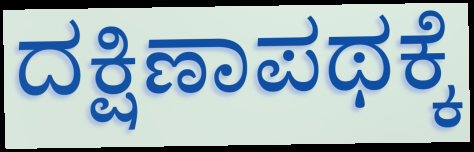
ದಕ್ಷಿಣಾಪಥಕ್ಕೆ